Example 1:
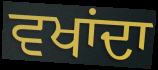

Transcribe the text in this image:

ਵਖਾਂਦਾ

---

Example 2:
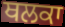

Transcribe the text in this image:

ਥਲਕਾ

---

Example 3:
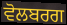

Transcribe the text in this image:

ਵੋਲਬਰਗ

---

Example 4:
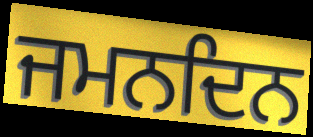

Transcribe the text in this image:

ਜਮਨਦਿਨ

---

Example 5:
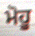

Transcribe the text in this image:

ਮੋਹੂ